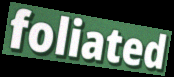
foliated